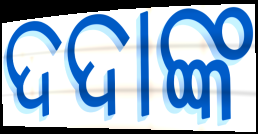
ଦଦାଙ୍କ